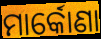
ମାର୍କୋଣା